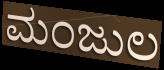
ಮಂಜುಲ